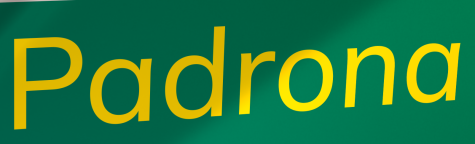
Padrona